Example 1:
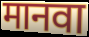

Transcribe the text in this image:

मानवा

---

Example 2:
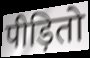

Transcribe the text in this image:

पीड़ितो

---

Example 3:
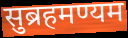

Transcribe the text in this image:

सुब्रहमण्यम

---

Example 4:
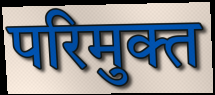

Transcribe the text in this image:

परिमुक्त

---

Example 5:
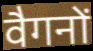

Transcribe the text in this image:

वैगनों